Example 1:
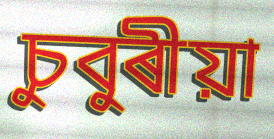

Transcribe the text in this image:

চুবুৰীয়া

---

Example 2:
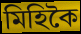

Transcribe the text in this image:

মিহিকৈ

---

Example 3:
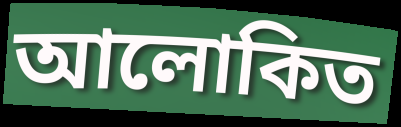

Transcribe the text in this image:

আলোকিত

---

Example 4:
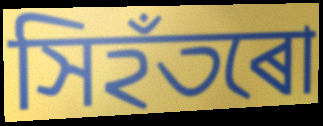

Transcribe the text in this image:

সিহঁতৰো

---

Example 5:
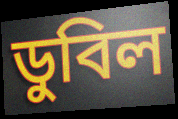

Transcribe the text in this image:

ডুবিল